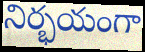
నిర్భయంగా